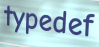
typedef